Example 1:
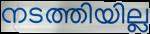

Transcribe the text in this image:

നടത്തിയില്ല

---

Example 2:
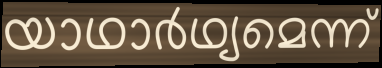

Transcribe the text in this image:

യാഥാർഥ്യമെന്ന്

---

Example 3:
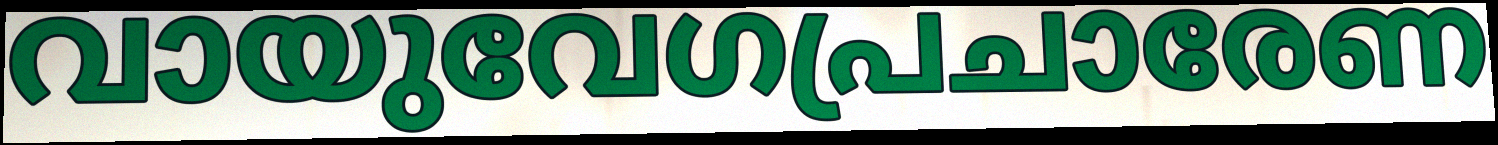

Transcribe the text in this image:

വായുവേഗപ്രചാരേണ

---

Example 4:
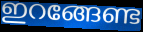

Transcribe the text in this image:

ഇറങ്ങേണ്ട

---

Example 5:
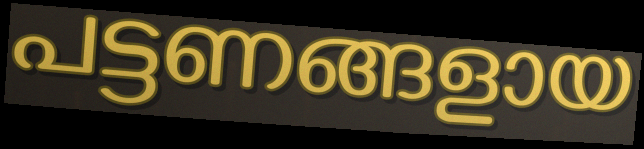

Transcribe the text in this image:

പട്ടണങ്ങളായ